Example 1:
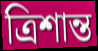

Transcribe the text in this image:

ত্রিশান্ত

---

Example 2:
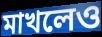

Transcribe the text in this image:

মাখলেও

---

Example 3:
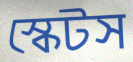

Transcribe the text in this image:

স্কেটস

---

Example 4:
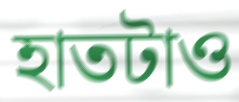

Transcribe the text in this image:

হাতটাও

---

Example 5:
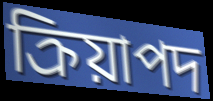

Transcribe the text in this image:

ক্রিয়াপদ